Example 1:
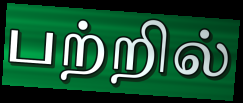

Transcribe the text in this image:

பற்றில்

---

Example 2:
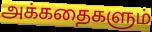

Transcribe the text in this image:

அக்கதைகளும்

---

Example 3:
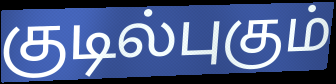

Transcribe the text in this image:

குடில்புகும்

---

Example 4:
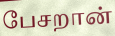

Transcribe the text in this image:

பேசறான்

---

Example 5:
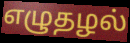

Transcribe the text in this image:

எழுதழல்